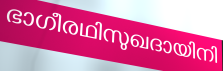
ഭാഗീരഥിസുഖദായിനി